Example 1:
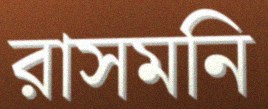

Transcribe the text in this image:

রাসমনি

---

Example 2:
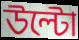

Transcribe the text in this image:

উল্টো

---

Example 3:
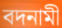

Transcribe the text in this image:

বদনামী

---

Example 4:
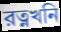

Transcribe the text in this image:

রত্নখনি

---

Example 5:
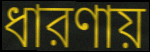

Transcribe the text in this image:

ধারণায়